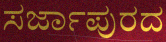
ಸರ್ಜಾಪುರದ